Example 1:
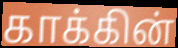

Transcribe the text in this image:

காக்கின்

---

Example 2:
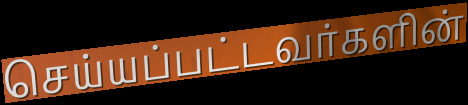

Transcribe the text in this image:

செய்யப்பட்டவர்களின்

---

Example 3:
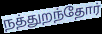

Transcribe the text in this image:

நத்துறந்தோர்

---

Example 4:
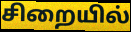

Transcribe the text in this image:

சிறையில்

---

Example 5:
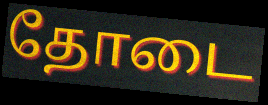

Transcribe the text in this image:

தோடை